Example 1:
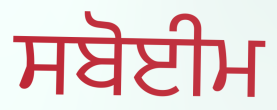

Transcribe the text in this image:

ਸਬੋਈਮ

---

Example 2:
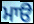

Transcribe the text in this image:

ਮਾੳ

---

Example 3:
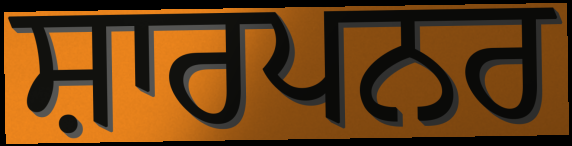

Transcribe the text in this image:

ਸ਼ਾਰਪਨਰ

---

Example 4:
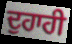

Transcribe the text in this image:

ਦੁਹਾਹੀ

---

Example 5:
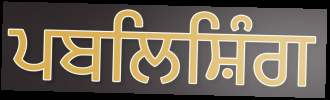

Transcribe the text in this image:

ਪਬਲਿਸ਼ਿੰਗ